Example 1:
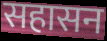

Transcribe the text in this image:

सहासन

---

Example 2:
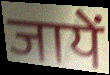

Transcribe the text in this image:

जायें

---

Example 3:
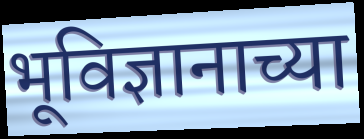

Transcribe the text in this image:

भूविज्ञानाच्या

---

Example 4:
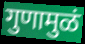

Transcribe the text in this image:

गुणामुळं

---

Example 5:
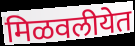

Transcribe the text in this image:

मिळवलीयेत